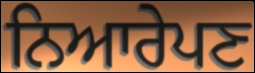
ਨਿਆਰੇਪਣ